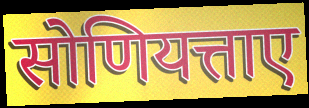
सोणियत्ताए